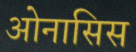
ओनासिस